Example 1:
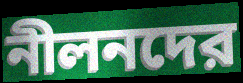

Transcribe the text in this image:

নীলনদের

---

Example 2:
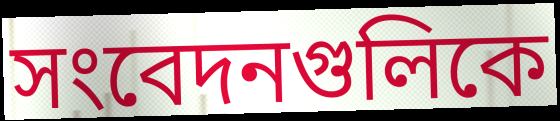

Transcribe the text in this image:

সংবেদনগুলিকে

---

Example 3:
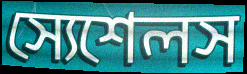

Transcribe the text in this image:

স্যেশেলস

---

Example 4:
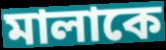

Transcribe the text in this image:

মালাকে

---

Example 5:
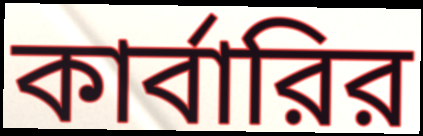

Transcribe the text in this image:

কার্বারির